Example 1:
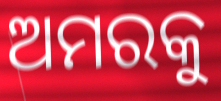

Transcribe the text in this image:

ଅମରକୁ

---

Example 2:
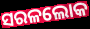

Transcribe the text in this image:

ସରଳଲୋକ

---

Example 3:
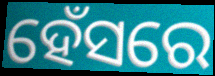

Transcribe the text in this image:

ହେଁସରେ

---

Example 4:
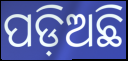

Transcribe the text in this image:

ପଡ଼ିଅଛି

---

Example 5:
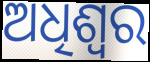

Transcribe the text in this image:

ଅଧିଶ୍ବର